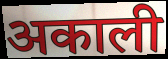
अकाली